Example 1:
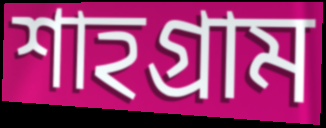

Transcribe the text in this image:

শাহগ্রাম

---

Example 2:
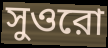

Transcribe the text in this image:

সুওরো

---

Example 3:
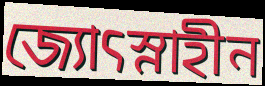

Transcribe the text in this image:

জ্যোৎস্নাহীন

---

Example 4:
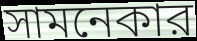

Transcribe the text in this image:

সামনেকার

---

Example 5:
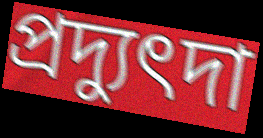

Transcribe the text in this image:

প্রদ্যুৎদা